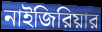
নাইজিরিয়ার